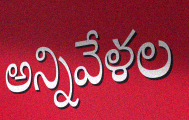
అన్నివేళల